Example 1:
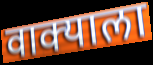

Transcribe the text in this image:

वाक्‍याला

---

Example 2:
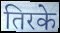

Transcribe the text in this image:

तिरके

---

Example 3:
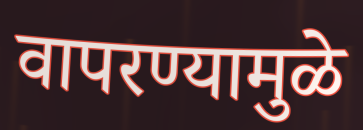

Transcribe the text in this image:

वापरण्यामुळे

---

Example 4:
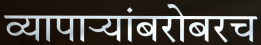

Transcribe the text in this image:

व्यापाऱ्यांबरोबरच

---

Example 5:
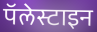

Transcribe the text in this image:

पॅलेस्टाइन